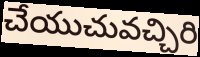
చేయుచువచ్చిరి